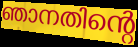
ഞാനതിന്റെ